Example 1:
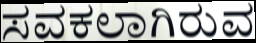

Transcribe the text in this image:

ಸವಕಲಾಗಿರುವ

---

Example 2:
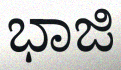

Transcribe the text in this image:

ಭಾಜಿ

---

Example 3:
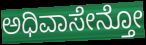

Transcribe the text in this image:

ಅಧಿವಾಸೇನ್ತೋ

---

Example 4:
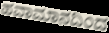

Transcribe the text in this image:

ಹವಾಮಾನದಿಂದ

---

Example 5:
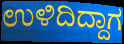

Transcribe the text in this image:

ಉಳಿದಿದ್ದಾಗ